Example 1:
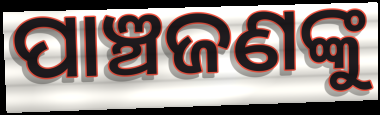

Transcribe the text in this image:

ପାଞ୍ଚଜଣଙ୍କୁ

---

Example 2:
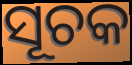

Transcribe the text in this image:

ସୂଚକ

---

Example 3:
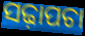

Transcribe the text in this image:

ସଢ଼ାପଚା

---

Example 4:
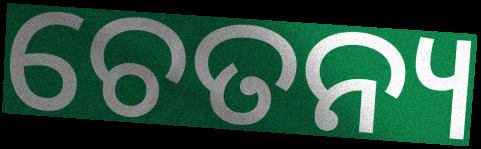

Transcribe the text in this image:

ଚେତନ୍ୟ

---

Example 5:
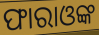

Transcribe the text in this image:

ଫାରାଓଙ୍କ